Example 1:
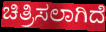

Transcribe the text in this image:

ಚಿತ್ರಿಸಲಾಗಿದೆ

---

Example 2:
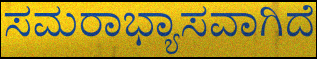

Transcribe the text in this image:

ಸಮರಾಭ್ಯಾಸವಾಗಿದೆ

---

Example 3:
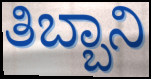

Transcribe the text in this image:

ತಿಬ್ಬಾನಿ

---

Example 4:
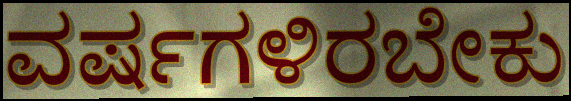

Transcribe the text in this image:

ವರ್ಷಗಳಿರಬೇಕು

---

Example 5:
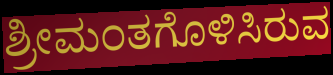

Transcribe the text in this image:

ಶ್ರೀಮಂತಗೊಳಿಸಿರುವ